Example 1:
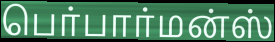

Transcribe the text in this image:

பெர்பார்மன்ஸ்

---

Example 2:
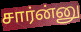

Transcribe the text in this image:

சார்ன்னு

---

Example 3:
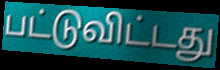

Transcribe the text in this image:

பட்டுவிட்டது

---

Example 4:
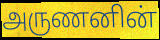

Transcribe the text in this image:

அருணனின்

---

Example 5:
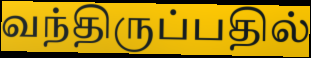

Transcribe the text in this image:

வந்திருப்பதில்